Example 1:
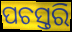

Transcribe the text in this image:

ପଚସ୍ତରି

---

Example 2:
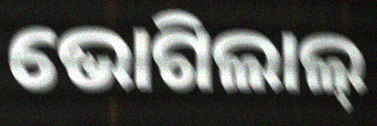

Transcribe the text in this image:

ଭୋଗିଲାଲ୍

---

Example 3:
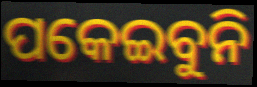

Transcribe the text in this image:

ପକେଇବୁନି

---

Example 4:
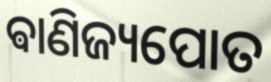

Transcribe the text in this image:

ଵାଣିଜ୍ୟପୋତ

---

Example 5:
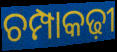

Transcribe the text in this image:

ଚମ୍ପାକଢ଼ୀ